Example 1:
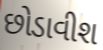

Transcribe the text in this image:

છોડાવીશ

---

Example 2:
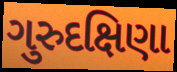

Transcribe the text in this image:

ગુરુદક્ષિણા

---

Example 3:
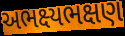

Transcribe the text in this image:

અભક્ષ્યભક્ષણ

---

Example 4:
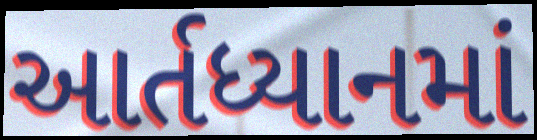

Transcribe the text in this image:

આર્તધ્યાનમાં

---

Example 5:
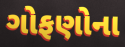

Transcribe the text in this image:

ગોફણોના